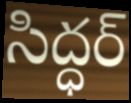
సిద్ధర్